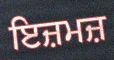
ਇਜ਼ਮਜ਼